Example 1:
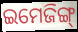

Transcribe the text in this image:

ଇମେଜିଙ୍ଗ୍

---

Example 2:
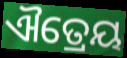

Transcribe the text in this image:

ଐତ୍ରେୟ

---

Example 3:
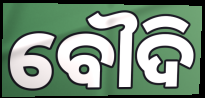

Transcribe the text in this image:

ବୌଦି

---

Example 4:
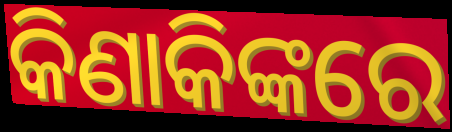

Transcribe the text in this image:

କିଣାକିଙ୍କରେ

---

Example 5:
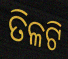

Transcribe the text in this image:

ତିଳଟି